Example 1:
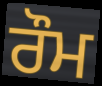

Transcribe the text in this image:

ਰੌਮ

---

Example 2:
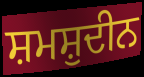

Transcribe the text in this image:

ਸ਼ਮਸ਼ੁਦੀਨ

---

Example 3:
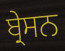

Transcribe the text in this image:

ਬ੍ਰੇਸਨ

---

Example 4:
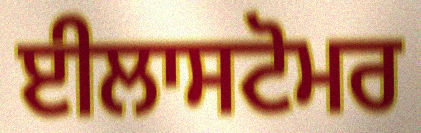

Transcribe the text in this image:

ਈਲਾਸਟੋਮਰ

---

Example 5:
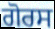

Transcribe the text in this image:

ਗੋਰਸ